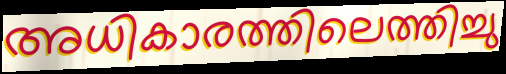
അധികാരത്തിലെത്തിച്ചു